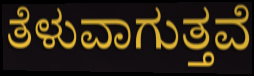
ತೆಳುವಾಗುತ್ತವೆ